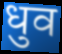
धुव